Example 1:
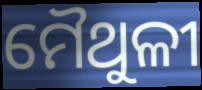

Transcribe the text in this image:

ମୈଥୁଳୀ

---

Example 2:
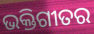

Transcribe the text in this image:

ଭକ୍ତିଗୀତର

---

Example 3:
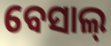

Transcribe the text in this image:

ବେସାଲ୍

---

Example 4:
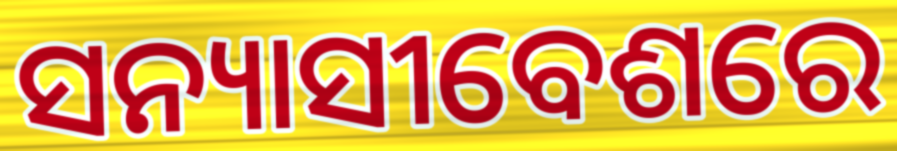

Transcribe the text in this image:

ସନ୍ୟାସୀବେଶରେ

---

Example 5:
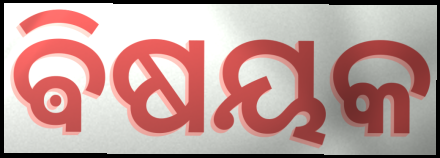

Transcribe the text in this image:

ଵିଷୟକ